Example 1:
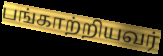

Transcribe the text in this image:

பங்காற்றியவர்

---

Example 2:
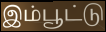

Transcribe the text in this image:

இம்பூட்டு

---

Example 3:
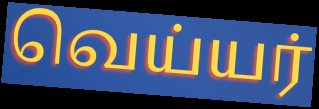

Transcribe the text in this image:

வெய்யர்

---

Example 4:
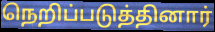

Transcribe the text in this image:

நெறிப்படுத்தினார்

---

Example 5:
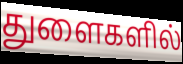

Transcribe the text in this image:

துளைகளில்